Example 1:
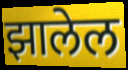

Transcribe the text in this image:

झालेल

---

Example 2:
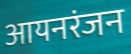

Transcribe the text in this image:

आयनरंजन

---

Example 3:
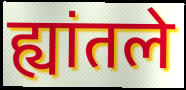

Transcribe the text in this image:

ह्यांतले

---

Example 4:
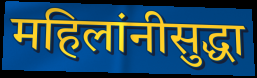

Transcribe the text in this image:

महिलांनीसुद्धा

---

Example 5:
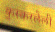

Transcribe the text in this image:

कुस्करलेली